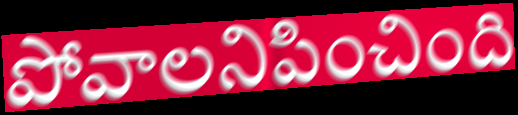
పోవాలనిపించింది